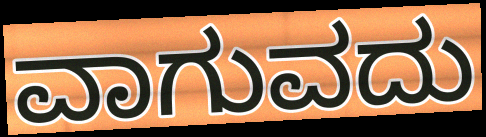
ವಾಗುವದು